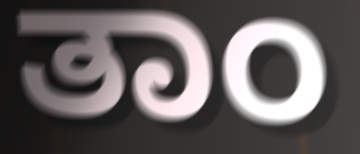
ತಾಂ